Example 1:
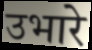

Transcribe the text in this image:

उभारे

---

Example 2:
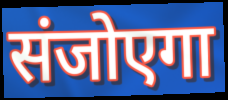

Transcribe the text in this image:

संजोएगा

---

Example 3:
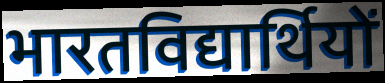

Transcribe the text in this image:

भारतविद्यार्थियों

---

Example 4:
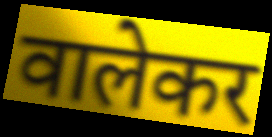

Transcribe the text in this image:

वालेकर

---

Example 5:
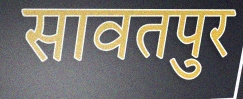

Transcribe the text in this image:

सावतपुर